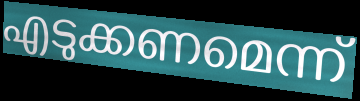
എടുക്കണമെന്ന്